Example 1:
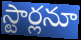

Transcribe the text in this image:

స్టార్లనూ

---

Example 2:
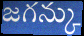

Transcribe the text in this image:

జగన్కు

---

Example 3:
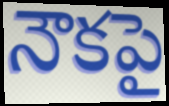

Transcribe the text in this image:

నౌకపై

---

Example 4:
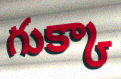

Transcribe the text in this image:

గుక్కా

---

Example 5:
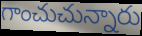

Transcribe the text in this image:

గాంచుచున్నారు